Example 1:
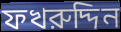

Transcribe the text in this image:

ফখরুদ্দিন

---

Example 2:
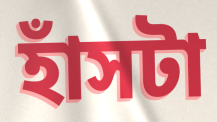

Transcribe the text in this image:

হাঁসটা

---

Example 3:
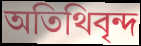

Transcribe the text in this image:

অতিথিবৃন্দ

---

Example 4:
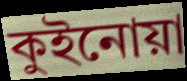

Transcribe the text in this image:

কুইনোয়া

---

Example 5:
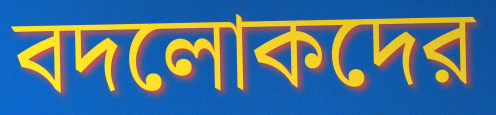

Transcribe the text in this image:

বদলোকদের